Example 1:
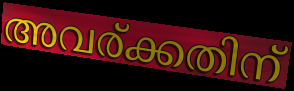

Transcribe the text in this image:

അവര്ക്കതിന്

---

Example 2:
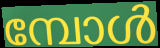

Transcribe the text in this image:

മ്പോൾ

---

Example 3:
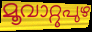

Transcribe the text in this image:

മൂവാറ്റുപുഴ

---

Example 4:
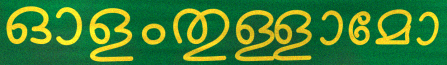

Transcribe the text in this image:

ഓളംതുള്ളാമോ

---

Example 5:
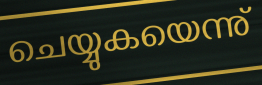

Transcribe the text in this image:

ചെയ്യുകയെന്നു്